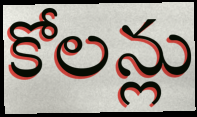
కోలన్లు